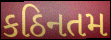
કઠિનતમ